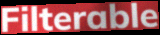
Filterable